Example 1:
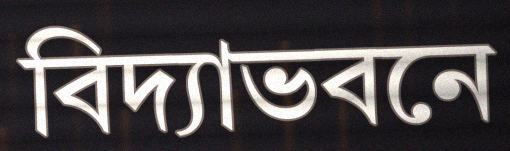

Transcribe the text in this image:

বিদ্যাভবনে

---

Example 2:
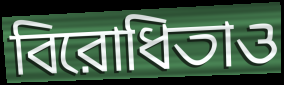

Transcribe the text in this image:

বিরোধিতাও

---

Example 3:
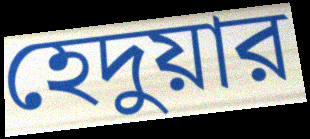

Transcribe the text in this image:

হেদুয়ার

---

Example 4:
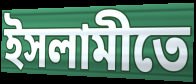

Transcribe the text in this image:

ইসলামীতে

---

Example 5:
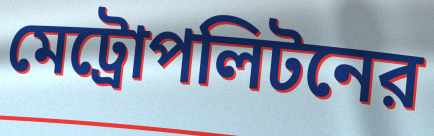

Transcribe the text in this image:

মেট্রোপলিটনের